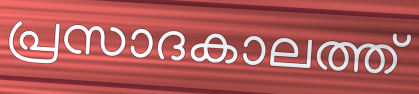
പ്രസാദകാലത്ത്